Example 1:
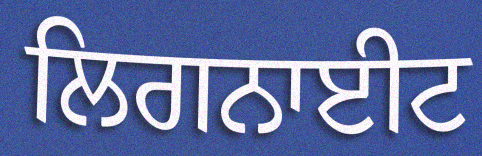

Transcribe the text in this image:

ਲਿਗਨਾਈਟ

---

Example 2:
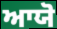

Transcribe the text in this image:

ਆਯੋ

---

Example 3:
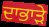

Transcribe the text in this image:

ਦਾਭਾੜੇ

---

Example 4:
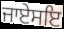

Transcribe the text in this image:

ਜਾਏਸਇ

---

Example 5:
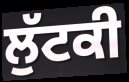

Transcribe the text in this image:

ਲੁੱਟਕੀ